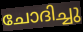
ചോദിച്ചു